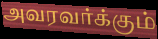
அவரவர்க்கும்